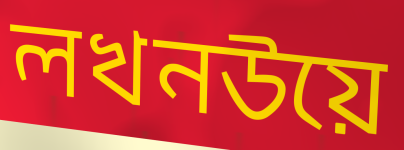
লখনউয়ে